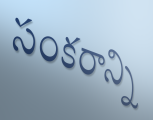
సంకరాన్ని